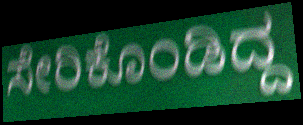
ಸೇರಿಕೊಂಡಿದ್ದ